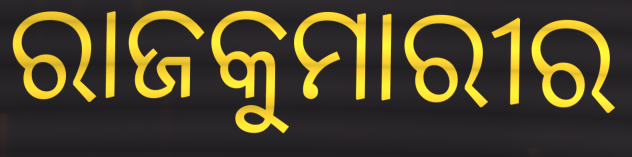
ରାଜକୁମାରୀର